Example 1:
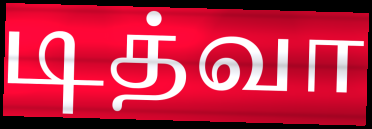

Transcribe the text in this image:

டித்வா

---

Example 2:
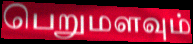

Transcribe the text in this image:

பெறுமளவும்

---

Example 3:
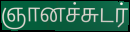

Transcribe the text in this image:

ஞானச்சுடர்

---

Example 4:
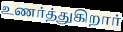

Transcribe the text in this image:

உணர்த்துகிறார்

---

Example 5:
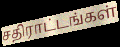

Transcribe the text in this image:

சதிராட்டங்கள்